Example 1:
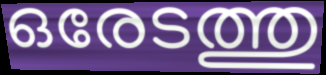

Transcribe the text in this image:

ഒരേടത്തു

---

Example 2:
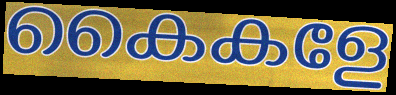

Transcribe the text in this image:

കൈകളേ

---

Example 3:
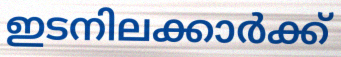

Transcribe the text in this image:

ഇടനിലക്കാർക്ക്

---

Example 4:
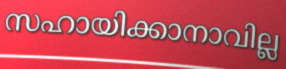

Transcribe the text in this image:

സഹായിക്കാനാവില്ല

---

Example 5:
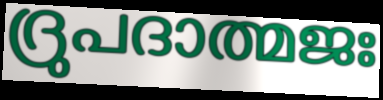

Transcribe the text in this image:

ദ്രുപദാത്മജഃ